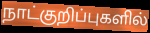
நாட்குறிப்புகளில்